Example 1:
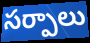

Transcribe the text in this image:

సర్పాలు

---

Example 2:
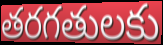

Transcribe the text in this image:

తరగతులకు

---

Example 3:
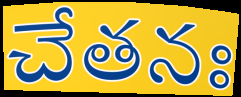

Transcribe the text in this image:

చేతనః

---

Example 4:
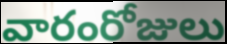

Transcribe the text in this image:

వారంరోజులు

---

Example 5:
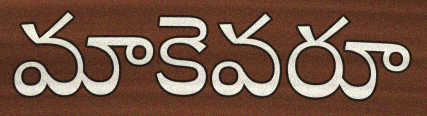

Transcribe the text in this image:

మాకెవరూ